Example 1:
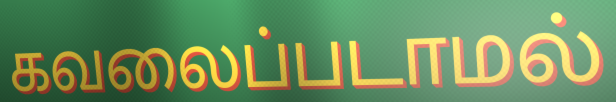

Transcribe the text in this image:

கவலைப்படாமல்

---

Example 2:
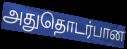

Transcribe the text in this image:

அதுதொடர்பான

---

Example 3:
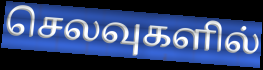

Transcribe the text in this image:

செலவுகளில்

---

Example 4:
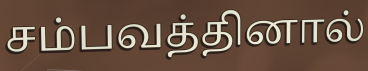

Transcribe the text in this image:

சம்பவத்தினால்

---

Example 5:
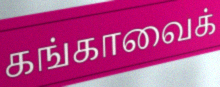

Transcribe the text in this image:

கங்காவைக்